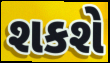
શકશે